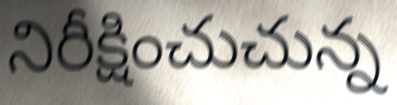
నిరీక్షించుచున్న